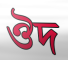
ঔদ